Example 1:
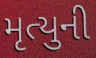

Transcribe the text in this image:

મૃત્યુની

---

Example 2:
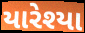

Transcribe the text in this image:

યારેશ્યા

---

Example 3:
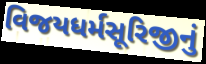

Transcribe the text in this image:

વિજયધર્મસૂરિજીનું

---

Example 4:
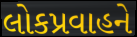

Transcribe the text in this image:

લોકપ્રવાહને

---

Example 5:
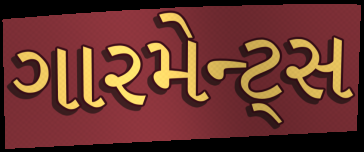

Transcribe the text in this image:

ગારમેન્ટ્સ